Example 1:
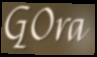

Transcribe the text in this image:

GOra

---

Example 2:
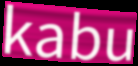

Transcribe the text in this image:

kabu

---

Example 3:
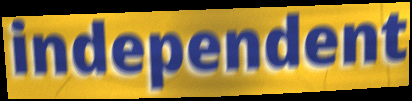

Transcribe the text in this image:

independent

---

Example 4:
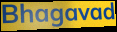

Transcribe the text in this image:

Bhagavad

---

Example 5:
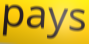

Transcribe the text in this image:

pays